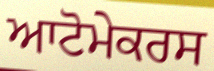
ਆਟੋਮੇਕਰਸ